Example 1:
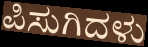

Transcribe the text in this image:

ಪಿಸುಗಿದಳು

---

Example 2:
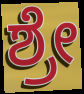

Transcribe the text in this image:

ಶ್ರೇ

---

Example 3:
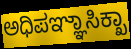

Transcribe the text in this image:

ಅಧಿಪಞ್ಞಾಸಿಕ್ಖಾ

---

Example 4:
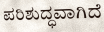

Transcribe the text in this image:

ಪರಿಶುದ್ಧವಾಗಿದೆ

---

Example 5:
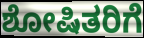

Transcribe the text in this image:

ಶೋಷಿತರಿಗೆ